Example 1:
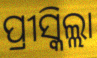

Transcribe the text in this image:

ପ୍ରୀସ୍କିଲ୍ଲା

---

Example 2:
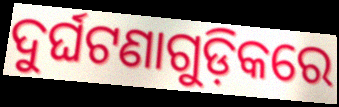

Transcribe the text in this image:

ଦୁର୍ଘଟଣାଗୁଡ଼ିକରେ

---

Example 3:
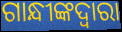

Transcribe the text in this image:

ଗାନ୍ଧୀଙ୍କଦ୍ଵାରା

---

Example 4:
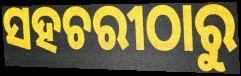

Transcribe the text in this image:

ସହଚରୀଠାରୁ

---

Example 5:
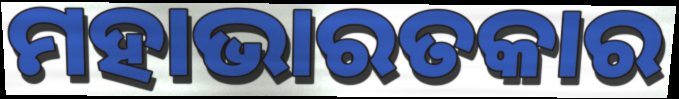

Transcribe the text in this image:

ମହାଭାରତକାର